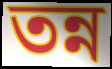
তন্ন